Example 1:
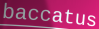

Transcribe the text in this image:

baccatus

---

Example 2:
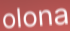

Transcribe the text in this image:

olona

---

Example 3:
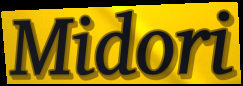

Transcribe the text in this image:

Midori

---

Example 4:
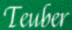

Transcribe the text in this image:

Teuber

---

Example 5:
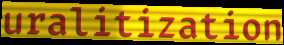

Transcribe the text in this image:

uralitization